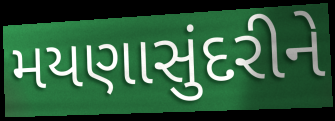
મયણાસુંદરીને